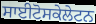
ਸਾਈਟੋਸਕੇਲੇਟਨ